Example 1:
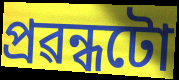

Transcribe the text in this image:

প্ৰৱন্ধটো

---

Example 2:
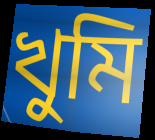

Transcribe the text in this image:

খুমি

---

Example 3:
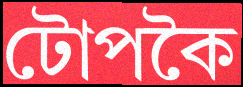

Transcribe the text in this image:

টোপকৈ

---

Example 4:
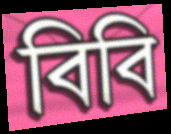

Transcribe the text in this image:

বিবি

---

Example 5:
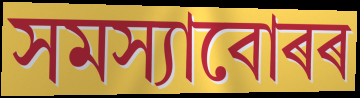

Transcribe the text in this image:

সমস্যাবোৰৰ